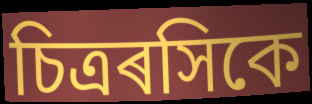
চিত্ৰৰসিকে